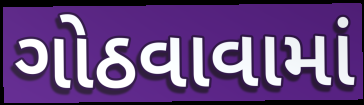
ગોઠવાવામાં